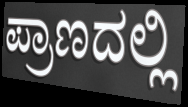
ಪ್ರಾಣದಲ್ಲಿ